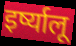
इर्ष्यालू